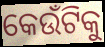
କେଉଁଟିକୁ